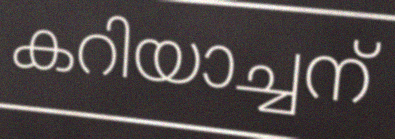
കറിയാച്ചന്